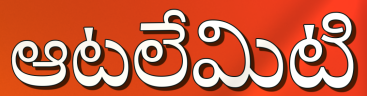
ఆటలేమిటి